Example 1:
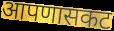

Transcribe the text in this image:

आपणासकट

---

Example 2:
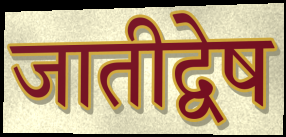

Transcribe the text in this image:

जातीद्वेष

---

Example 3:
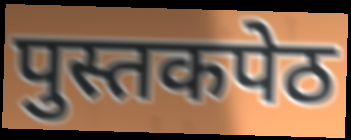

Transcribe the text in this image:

पुस्तकपेठ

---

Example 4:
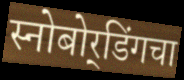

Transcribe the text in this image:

स्नोबोर्डिंगचा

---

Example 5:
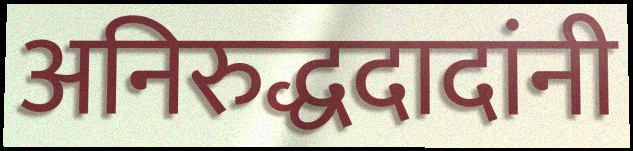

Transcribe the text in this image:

अनिरुद्धदादांनी